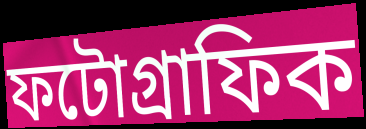
ফটোগ্রাফিক